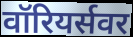
वॉरियर्सवर